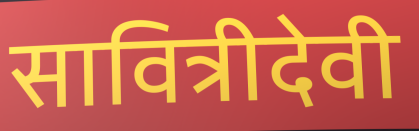
सावित्रीदेवी